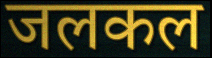
जलकल